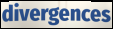
divergences